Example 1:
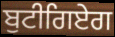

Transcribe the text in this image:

ਬੁਟੀਗਿਏਗ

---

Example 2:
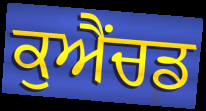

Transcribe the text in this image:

ਕੁਐਂਚਡ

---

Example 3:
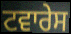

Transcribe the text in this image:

ਟਵਾਰੇਸ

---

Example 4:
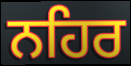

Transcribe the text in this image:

ਨਹਿਰ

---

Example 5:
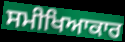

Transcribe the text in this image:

ਸਮੀਖਿਆਕਾਰ